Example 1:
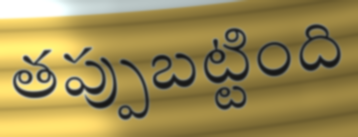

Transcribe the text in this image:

తప్పుబట్టింది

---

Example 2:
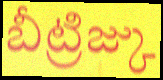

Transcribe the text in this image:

బీట్రిజ్కు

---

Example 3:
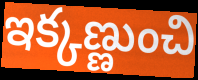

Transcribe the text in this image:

ఇక్కణ్ణుంచి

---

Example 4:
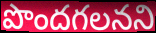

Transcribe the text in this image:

పొందగలనని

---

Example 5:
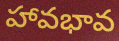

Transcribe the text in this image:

హావభావ